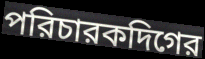
পরিচারকদিগের